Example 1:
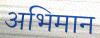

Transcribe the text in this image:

अभिमान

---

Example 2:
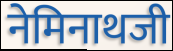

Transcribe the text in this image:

नेमिनाथजी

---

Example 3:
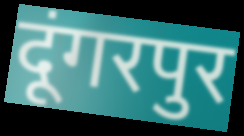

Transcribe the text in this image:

दूंगरपुर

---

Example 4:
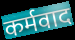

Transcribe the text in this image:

कर्मवाद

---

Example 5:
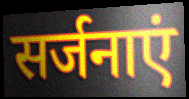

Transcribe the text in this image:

सर्जनाएं